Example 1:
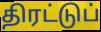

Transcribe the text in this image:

திரட்டுப்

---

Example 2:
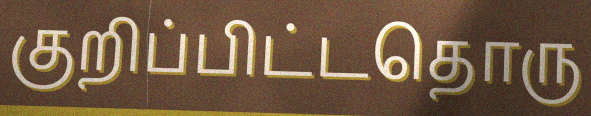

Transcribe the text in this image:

குறிப்பிட்டதொரு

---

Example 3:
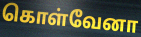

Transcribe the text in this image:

கொள்வேனா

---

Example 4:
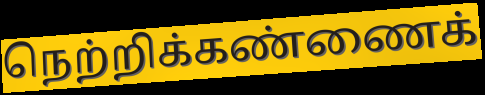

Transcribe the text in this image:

நெற்றிக்கண்ணைக்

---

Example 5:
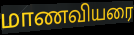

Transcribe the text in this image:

மாணவியரை